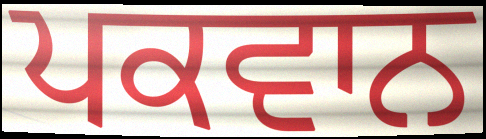
ਪਕਵਾਨ